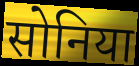
सोनिया